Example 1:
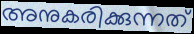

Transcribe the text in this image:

അനുകരിക്കുന്നത്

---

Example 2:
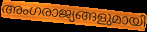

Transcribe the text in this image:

അംഗരാജ്യങ്ങളുമായി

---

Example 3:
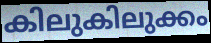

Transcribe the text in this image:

കിലുകിലുക്കം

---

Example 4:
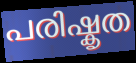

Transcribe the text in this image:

പരിഷ്കൃത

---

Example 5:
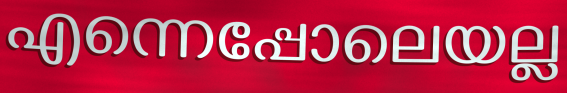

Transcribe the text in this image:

എന്നെപ്പോലെയല്ല